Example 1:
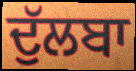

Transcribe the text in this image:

ਦੁੱਲਬਾ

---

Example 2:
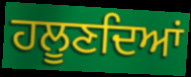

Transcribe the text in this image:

ਹਲੂਣਦਿਆਂ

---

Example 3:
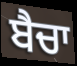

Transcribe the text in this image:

ਬੈਚਾ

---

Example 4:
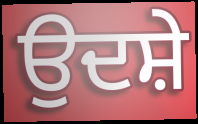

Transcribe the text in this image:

ਉਦਸ਼ੇ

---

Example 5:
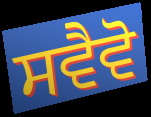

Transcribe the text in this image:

ਸਵੈਵੋ